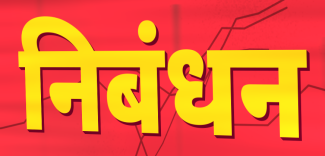
निबंधन